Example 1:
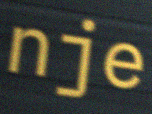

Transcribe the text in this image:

nje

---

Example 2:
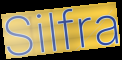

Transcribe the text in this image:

Silfra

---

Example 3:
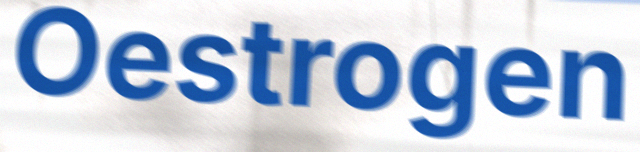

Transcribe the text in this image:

Oestrogen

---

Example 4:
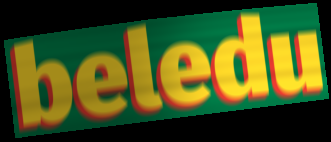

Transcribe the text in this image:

beledu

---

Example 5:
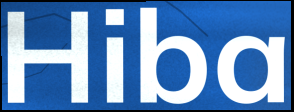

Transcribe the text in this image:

Hiba